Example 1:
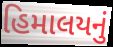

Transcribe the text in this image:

હિમાલયનું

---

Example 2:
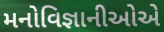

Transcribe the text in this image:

મનોવિજ્ઞાનીઓએ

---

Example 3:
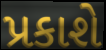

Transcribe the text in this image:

પ્રકાશે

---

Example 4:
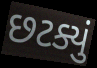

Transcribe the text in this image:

છટક્યું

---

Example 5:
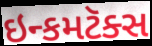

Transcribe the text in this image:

ઇન્કમટૅક્સ